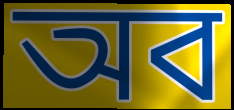
অব